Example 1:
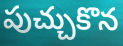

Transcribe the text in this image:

పుచ్చుకొన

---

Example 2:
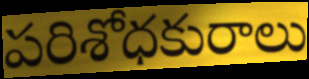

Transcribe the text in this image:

పరిశోధకురాలు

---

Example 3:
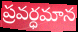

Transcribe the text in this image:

ప్రవర్ధమాన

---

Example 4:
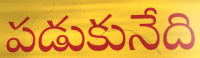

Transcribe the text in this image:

పడుకునేది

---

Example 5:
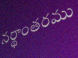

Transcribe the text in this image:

నర్థాంతరము